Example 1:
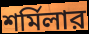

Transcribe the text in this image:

শর্মিলার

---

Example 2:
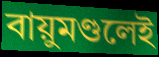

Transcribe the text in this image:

বায়ুমণ্ডলেই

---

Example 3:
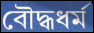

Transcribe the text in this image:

বৌদ্ধধর্ম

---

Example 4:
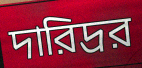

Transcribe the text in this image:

দারিদ্রর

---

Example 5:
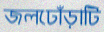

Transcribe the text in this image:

জলঢোঁড়াটি